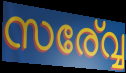
സര്വ്വേ